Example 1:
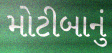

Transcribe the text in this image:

મોટીબાનું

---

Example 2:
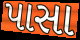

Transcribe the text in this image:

પાસા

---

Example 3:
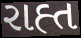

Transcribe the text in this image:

રાહ્ત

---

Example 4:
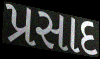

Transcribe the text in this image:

પ્રસાદ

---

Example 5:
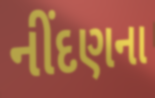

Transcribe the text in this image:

નીંદણના